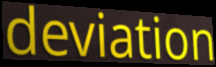
deviation